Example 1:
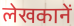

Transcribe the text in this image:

लेखकानें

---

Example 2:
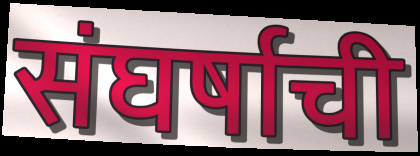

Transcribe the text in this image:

संघर्षाची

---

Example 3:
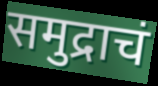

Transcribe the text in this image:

समुद्राचं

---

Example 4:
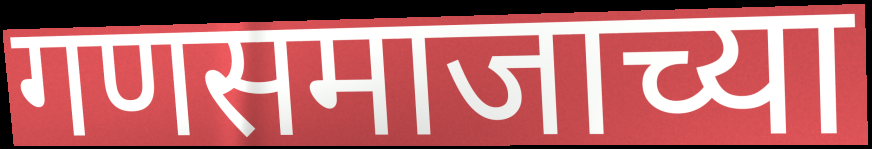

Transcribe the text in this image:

गणसमाजाच्या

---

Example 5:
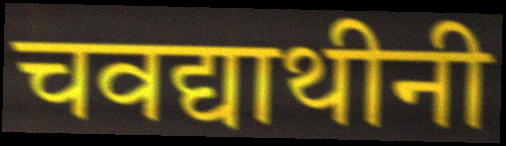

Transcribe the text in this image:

चवद्याथीनी